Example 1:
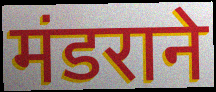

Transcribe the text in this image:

मंडराने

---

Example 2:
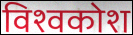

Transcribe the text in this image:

विश्वकोश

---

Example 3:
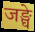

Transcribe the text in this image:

जङ्घे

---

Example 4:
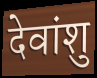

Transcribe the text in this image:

देवांशु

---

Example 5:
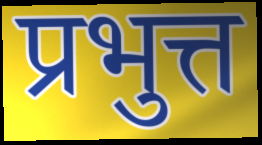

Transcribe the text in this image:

प्रभुत्त